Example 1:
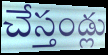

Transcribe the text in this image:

చేస్తండ్లు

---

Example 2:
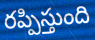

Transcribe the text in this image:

రప్పిస్తుంది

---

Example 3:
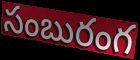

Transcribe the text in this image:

సంబురంగ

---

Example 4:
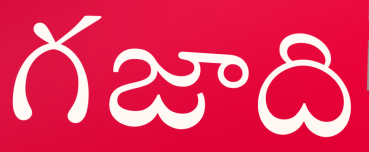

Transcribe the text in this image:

గజాది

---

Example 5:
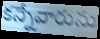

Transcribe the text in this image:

కన్నేవారును